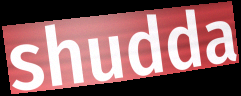
shudda